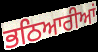
ਭਠਿਆਰੀਆਂ